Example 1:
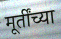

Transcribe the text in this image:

मूर्तींच्या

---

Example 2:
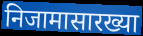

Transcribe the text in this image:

निजामासारख्या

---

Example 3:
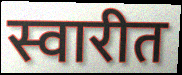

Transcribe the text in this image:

स्वारीत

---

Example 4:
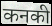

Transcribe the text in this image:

कनकी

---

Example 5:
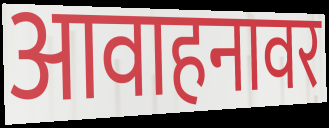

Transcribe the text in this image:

आवाहनावर